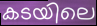
കടയിലെ